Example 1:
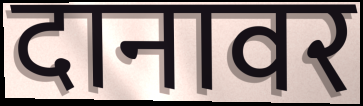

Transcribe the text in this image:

दानावर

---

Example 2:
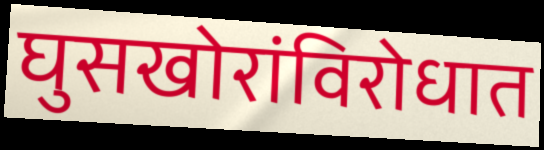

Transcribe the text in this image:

घुसखोरांविरोधात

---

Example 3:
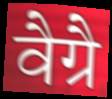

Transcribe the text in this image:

वैग्रै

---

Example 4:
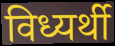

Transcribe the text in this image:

विध्यर्थी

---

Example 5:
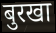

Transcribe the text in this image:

बुरखा